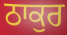
ਠਾਕੁਰ